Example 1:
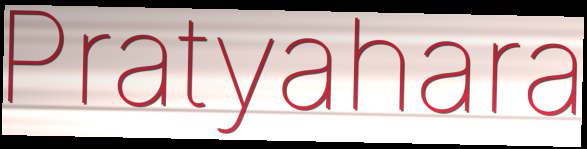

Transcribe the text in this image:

Pratyahara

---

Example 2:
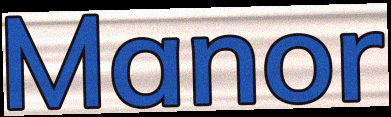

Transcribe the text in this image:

Manor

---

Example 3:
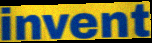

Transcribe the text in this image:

invent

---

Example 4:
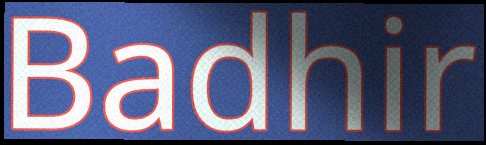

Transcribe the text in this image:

Badhir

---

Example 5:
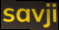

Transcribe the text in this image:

savji